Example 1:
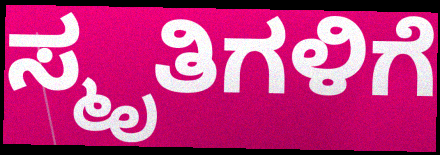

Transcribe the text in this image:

ಸ್ಮೃತಿಗಳಿಗೆ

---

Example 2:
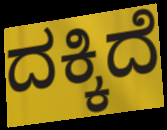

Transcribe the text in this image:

ದಕ್ಕಿದೆ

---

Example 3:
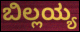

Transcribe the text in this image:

ಬಿಲ್ಲಯ್ಯ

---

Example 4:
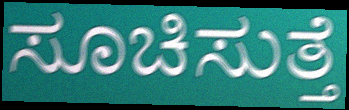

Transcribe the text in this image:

ಸೂಚಿಸುತ್ತೆ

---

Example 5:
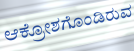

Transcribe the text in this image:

ಆಕ್ರೋಶಗೊಂಡಿರುವ